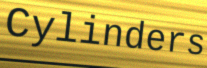
Cylinders